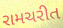
રામચરીત